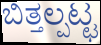
ಬಿತ್ತಲ್ಪಟ್ಟ